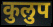
कुलुप